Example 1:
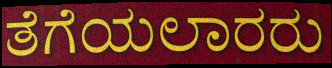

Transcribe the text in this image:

ತೆಗೆಯಲಾರರು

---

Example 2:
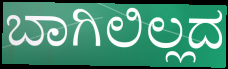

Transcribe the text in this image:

ಬಾಗಿಲಿಲ್ಲದ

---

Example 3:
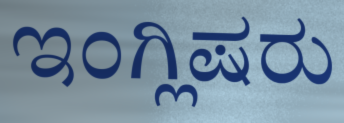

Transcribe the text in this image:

ಇಂಗ್ಲಿಷರು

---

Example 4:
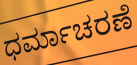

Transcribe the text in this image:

ಧರ್ಮಾಚರಣೆ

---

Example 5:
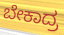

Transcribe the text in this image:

ಬೇಕಾದ್ರ